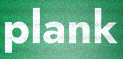
plank